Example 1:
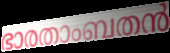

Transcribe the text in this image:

ഭാരതാംബതൻ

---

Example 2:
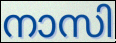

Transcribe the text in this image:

നാസി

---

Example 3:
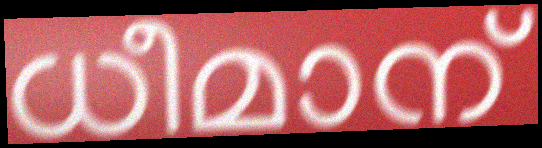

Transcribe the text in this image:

ധീമാന്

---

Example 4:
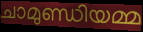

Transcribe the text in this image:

ചാമുണ്ഡിയമ്മ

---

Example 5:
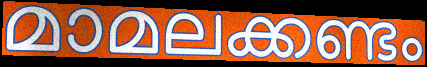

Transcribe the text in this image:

മാമലക്കണ്ടം